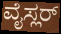
ವೈಸ್ಲರ್